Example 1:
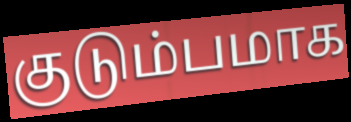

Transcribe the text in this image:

குடும்பமாக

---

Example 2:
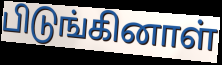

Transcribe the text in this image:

பிடுங்கினாள்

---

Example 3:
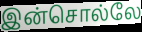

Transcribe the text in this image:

இன்சொல்லே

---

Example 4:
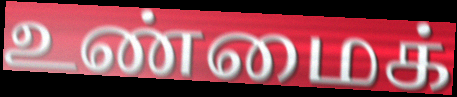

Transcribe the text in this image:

உண்மைக்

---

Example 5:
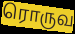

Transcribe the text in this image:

ரொருவ